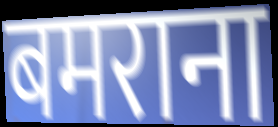
बमराना